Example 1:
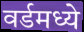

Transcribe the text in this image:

वर्डमध्ये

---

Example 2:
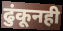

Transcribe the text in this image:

ढुंकूनही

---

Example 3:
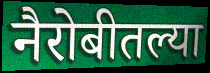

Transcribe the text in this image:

नैरोबीतल्या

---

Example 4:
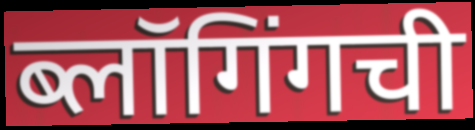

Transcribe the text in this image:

ब्लॉगिंगची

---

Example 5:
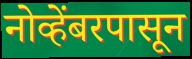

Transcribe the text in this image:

नोव्हेंबरपासून